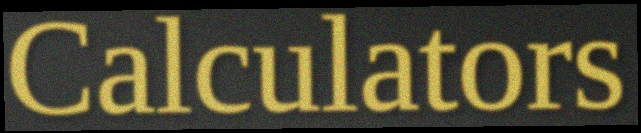
Calculators